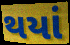
થયાં